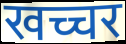
खच्चर